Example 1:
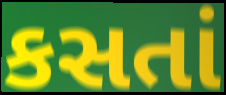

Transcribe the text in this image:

કસતાં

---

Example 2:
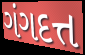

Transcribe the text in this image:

ગંગદત્ત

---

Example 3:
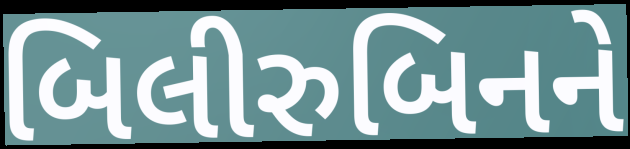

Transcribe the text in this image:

બિલીરુબિનને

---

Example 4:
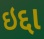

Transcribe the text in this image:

ઇદ્દા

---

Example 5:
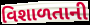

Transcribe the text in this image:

વિશાળતાની